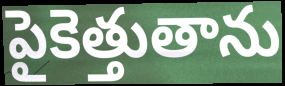
పైకెత్తుతాను